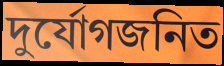
দুর্যোগজনিত